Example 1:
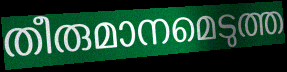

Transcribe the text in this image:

തീരുമാനമെടുത്ത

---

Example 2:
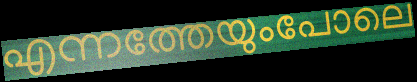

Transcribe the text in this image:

എന്നത്തേയുംപോലെ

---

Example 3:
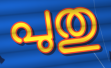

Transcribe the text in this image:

പുതു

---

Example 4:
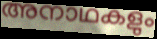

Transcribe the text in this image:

അനാഥകളും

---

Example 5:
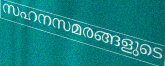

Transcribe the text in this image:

സഹനസമരങ്ങളുടെ